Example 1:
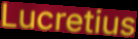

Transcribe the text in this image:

Lucretius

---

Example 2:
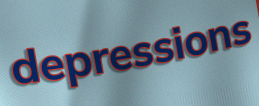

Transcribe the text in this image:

depressions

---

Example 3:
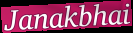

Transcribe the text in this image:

Janakbhai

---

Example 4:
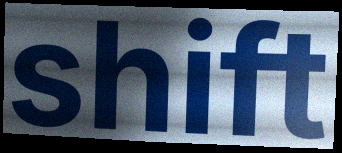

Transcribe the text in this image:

shift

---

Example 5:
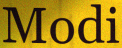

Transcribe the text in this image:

Modi